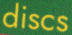
discs